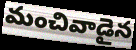
మంచివాడైన